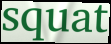
squat